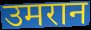
उमरान